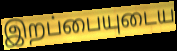
இறப்பையுடைய